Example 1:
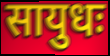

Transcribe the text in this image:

सायुधः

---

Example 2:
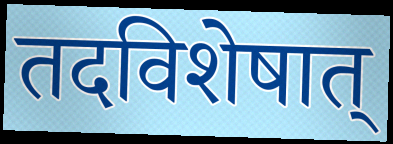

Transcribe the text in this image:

तदविशेषात्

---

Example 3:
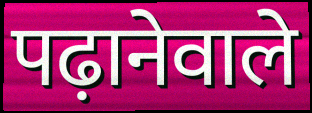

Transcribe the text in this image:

पढ़ानेवाले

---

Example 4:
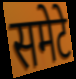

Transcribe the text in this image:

समेटे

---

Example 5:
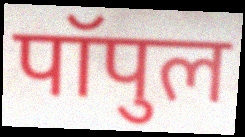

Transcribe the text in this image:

पॉपुल